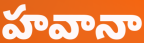
హవానా